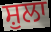
ਸ਼ੁਲਾ